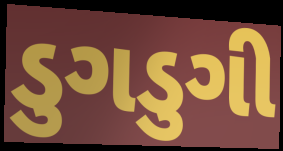
ડુગડુગી